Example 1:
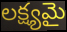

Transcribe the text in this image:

లక్ష్యమై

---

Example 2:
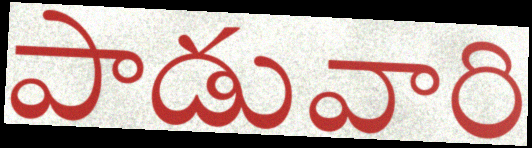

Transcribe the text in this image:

పాడువారి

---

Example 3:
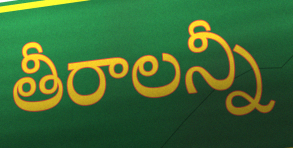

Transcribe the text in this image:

తీరాలన్నీ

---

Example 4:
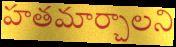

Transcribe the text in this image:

హతమార్చాలని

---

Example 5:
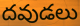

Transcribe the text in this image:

దవుడలు